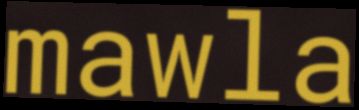
mawla